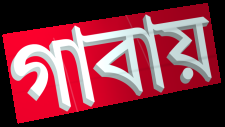
গাবায়